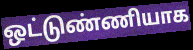
ஒட்டுண்ணியாக